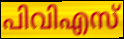
പിവിഎസ്